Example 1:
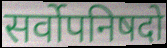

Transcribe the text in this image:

सर्वोपनिषदो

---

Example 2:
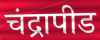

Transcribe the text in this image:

चंद्रापीड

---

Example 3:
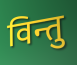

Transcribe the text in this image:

विन्तु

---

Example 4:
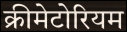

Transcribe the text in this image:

क्रीमेटोरियम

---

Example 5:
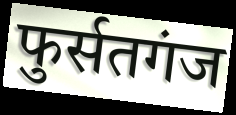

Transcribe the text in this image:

फुर्सतगंज